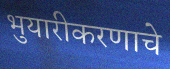
भुयारीकरणाचे